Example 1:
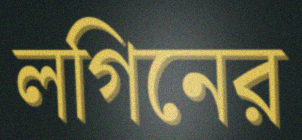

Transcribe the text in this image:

লগিনের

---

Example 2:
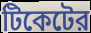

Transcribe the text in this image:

টিকেটের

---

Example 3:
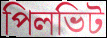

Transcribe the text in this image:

পিলভিট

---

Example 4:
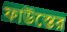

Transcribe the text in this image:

ফাউস্তের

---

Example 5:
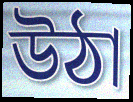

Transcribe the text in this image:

উঠা